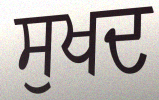
ਸੁਖਦ